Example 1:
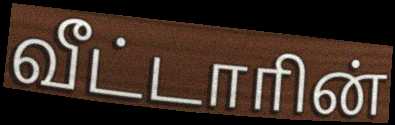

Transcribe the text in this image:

வீட்டாரின்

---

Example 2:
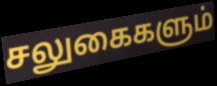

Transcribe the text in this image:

சலுகைகளும்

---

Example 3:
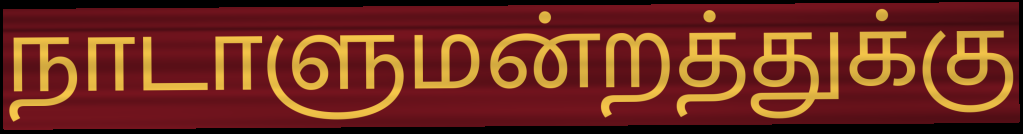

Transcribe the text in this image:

நாடாளுமன்றத்துக்கு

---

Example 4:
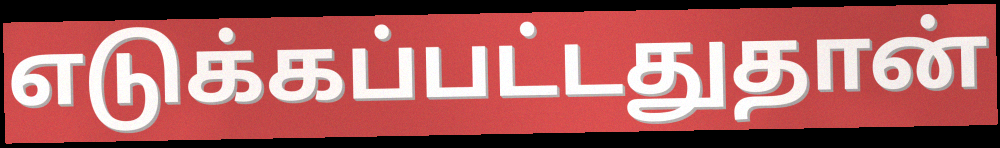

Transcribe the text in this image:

எடுக்கப்பட்டதுதான்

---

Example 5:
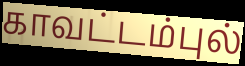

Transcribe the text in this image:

காவட்டம்புல்